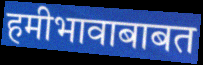
हमीभावाबाबत